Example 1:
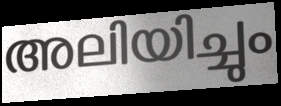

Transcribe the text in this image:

അലിയിച്ചും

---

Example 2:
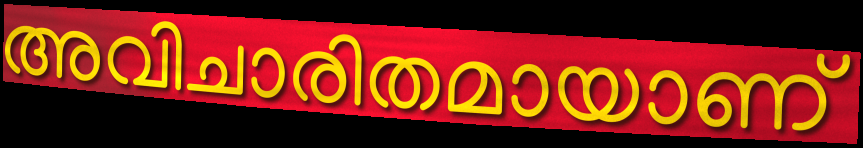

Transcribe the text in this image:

അവിചാരിതമായാണ്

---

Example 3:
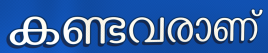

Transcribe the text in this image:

കണ്ടവരാണ്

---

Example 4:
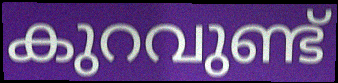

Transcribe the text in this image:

കുറവുണ്ട്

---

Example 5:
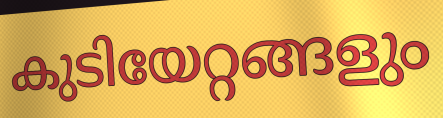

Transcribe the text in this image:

കുടിയേറ്റങ്ങളും